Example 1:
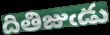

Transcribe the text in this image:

దితిజుఁడు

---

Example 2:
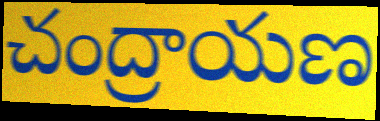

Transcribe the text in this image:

చంద్రాయణ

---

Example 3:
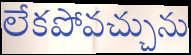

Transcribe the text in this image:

లేకపోవచ్చును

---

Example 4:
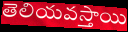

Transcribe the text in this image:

తెలియవస్తాయి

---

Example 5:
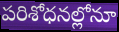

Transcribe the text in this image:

పరిశోధనల్లోనూ